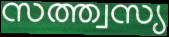
സത്ത്വസ്യ